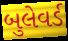
બુલેવર્ડ